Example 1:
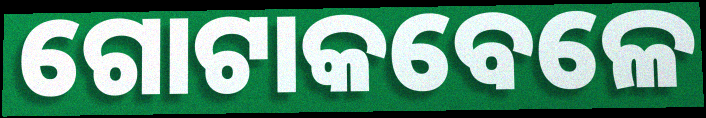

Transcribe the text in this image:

ଗୋଟାକବେଳେ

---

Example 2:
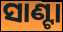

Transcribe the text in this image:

ସାଣ୍ଟା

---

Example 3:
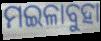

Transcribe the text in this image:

ମଇଳାବୁହା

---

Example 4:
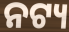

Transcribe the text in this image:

ନଟ୍ୟ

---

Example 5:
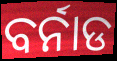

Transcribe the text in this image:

ବର୍ନାଡ